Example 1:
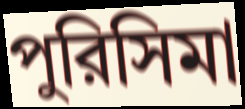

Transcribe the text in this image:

পুরিসিমা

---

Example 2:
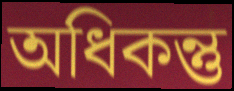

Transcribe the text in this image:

অধিকন্তু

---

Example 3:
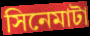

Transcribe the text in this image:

সিনেমাটা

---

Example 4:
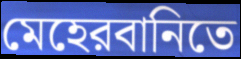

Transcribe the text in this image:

মেহেরবানিতে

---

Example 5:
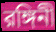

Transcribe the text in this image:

রঙ্গিনী